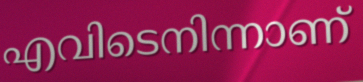
എവിടെനിന്നാണ്